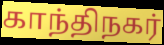
காந்திநகர்